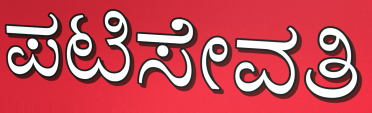
ಪಟಿಸೇವತಿ